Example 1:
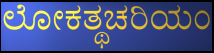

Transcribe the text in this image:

ಲೋಕತ್ಥಚರಿಯಂ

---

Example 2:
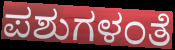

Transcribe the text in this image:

ಪಶುಗಳಂತೆ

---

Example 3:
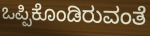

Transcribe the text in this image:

ಒಪ್ಪಿಕೊಂಡಿರುವಂತೆ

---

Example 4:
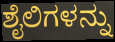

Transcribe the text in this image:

ಶೈಲಿಗಳನ್ನು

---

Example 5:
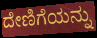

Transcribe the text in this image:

ದೇಣಿಗೆಯನ್ನು